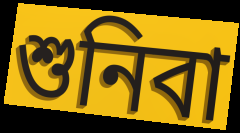
শুনিবা